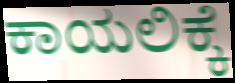
ಕಾಯಲಿಕ್ಕೆ